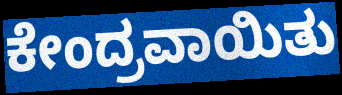
ಕೇಂದ್ರವಾಯಿತು